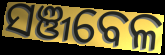
ସଞ୍ଜବେଳ